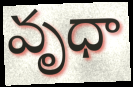
వృధా